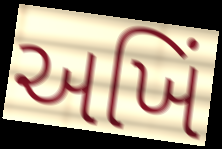
અખિં